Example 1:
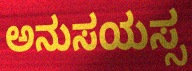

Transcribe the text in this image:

ಅನುಸಯಸ್ಸ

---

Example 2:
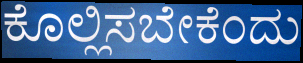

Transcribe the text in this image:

ಕೊಲ್ಲಿಸಬೇಕೆಂದು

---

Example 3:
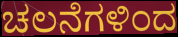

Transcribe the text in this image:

ಚಲನೆಗಳಿಂದ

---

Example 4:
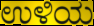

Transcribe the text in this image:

ಉಳಿಯ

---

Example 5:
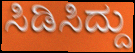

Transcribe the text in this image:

ಸಿಡಿಸಿದ್ದು